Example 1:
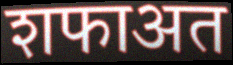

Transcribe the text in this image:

शफाअत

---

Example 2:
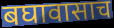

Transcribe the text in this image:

बघावासाच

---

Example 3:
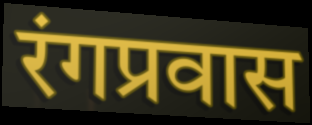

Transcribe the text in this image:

रंगप्रवास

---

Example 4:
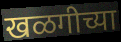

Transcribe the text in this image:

खळगीच्या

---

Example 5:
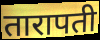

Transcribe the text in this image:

तारापती